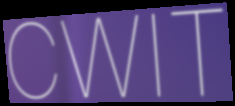
CWIT